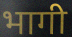
भागी